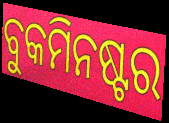
ବୁକମିନଷ୍ଟର